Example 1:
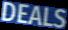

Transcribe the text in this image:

DEALS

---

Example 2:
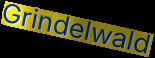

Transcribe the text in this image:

Grindelwald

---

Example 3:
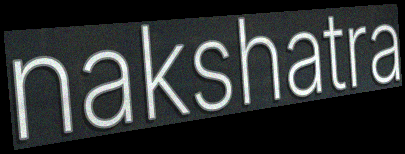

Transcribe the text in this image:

nakshatra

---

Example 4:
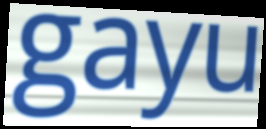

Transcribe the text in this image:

gayu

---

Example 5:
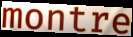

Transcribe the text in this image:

montre